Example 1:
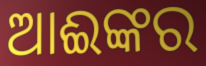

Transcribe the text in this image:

ଆଈଙ୍କର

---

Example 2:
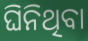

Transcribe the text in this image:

ଘିନିଥିବା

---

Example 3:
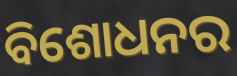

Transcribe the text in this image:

ବିଶୋଧନର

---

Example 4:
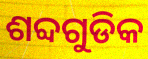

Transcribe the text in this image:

ଶବ୍ଦଗୁଡିକ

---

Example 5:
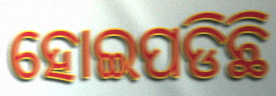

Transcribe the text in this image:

ହୋଇପଡିଛି